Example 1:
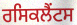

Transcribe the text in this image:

ਰਸਿਕਲੈਂਟਸ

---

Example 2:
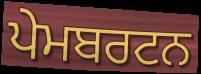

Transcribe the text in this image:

ਪੇਮਬਰਟਨ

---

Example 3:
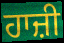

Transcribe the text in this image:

ਹਾਜ਼ੀ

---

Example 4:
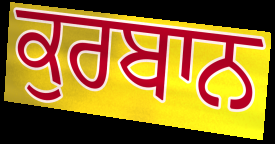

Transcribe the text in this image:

ਕੁਰਬਾਨ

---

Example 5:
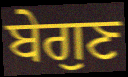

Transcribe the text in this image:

ਬੇਗੁਣ